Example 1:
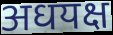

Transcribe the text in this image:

अधयक्ष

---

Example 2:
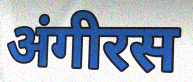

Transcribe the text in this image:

अंगीरस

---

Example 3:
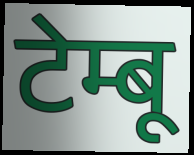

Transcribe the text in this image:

टेम्बू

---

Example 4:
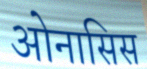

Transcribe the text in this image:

ओनासिस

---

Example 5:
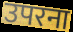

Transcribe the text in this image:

उपरना